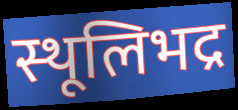
स्थूलिभद्र